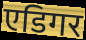
एडिगर